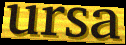
ursa